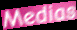
Medias